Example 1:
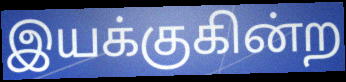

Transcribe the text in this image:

இயக்குகின்ற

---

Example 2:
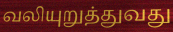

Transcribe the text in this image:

வலியுறுத்துவது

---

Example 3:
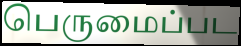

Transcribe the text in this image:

பெருமைப்பட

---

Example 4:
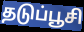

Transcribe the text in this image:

தடுப்பூசி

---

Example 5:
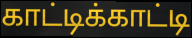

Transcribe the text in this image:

காட்டிக்காட்டி